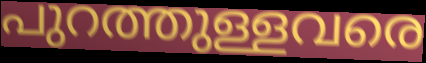
പുറത്തുള്ളവരെ